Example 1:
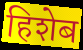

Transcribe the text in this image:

हिशेब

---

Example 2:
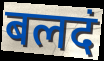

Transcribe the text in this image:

बलदं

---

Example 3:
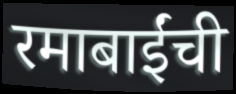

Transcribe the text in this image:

रमाबाईंची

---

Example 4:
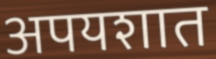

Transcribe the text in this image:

अपयशात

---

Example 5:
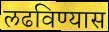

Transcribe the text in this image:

लढविण्यास